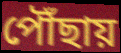
পৌঁছায়